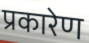
प्रकारेण